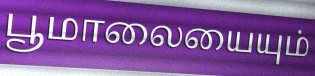
பூமாலையையும்